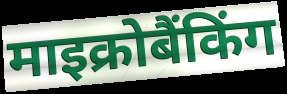
माइक्रोबैंकिंग